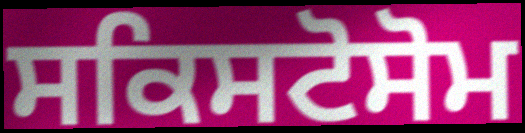
ਸਕਿਸਟੋਸੋਮ